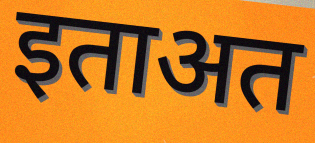
इताअत